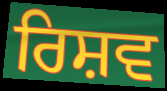
ਰਿਸ਼ਵ